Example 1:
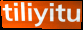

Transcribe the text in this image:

tiliyitu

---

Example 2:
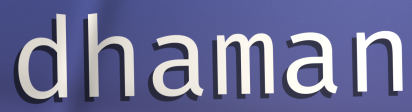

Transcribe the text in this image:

dhaman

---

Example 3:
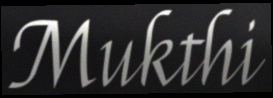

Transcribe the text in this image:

Mukthi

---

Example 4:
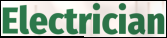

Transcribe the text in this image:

Electrician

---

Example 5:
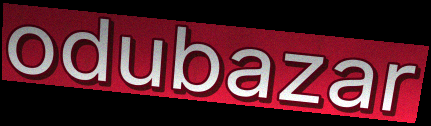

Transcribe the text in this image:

odubazar